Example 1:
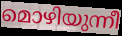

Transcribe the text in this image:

മൊഴിയുന്നീ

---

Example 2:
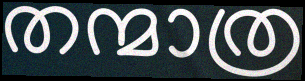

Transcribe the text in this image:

തന്മാത്ര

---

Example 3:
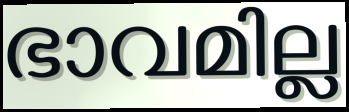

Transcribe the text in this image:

ഭാവമില്ല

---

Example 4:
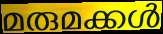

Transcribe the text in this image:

മരുമക്കൾ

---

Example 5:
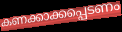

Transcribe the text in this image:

കണക്കാക്കപ്പെടണം